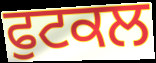
ਫੁਟਕਲ